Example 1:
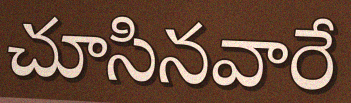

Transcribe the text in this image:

చూసినవారే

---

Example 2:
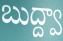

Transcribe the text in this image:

బుద్ద్వా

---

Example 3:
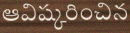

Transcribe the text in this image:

ఆవిష్కరించిన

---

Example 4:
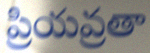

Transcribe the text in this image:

ప్రియవ్రతా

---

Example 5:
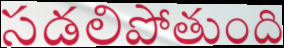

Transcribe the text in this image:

సడలిపోతుంది